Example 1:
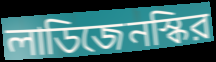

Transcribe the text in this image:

লাডিজেনস্কির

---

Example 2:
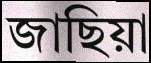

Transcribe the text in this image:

জাছিয়া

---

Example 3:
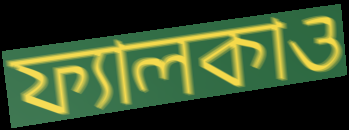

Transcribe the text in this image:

ফ্যালকাও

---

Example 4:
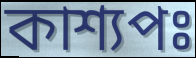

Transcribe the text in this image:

কাশ্যপঃ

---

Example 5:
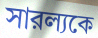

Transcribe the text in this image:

সারল্যকে